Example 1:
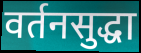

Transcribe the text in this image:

वर्तनसुद्धा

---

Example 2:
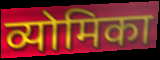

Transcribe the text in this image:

व्योमिका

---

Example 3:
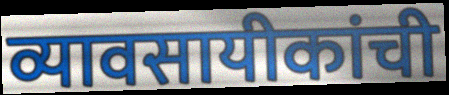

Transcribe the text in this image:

व्यावसायीकांची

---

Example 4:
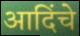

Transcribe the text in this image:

आदिंचे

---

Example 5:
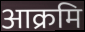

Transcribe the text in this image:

आक्रमि